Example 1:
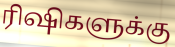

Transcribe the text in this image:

ரிஷிகளுக்கு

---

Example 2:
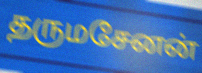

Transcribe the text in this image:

தருமசேனன்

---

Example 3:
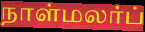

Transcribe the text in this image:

நாள்மலர்ப்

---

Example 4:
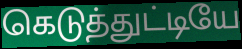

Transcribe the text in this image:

கெடுத்துட்டியே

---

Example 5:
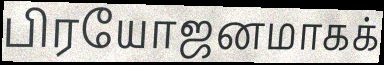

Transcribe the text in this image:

பிரயோஜனமாகக்